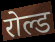
रोल्ड